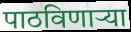
पाठविणाऱ्या